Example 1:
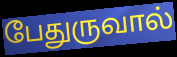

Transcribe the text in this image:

பேதுருவால்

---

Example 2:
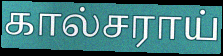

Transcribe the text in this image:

கால்சராய்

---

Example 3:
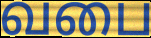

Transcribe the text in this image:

வபை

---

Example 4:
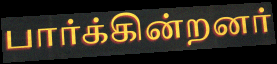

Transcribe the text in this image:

பார்க்கின்றனர்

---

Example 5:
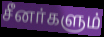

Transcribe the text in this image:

சீனர்களும்